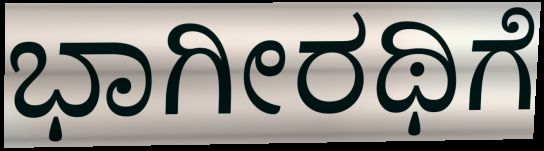
ಭಾಗೀರಥಿಗೆ